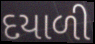
દયાળી